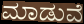
ಮಾಡುವೆ